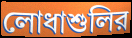
লোধাশুলির